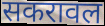
सकरावल